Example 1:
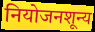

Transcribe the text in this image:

नियोजनशून्य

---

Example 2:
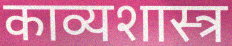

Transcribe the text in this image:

काव्यशास्त्र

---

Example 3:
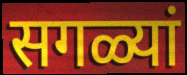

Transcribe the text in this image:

सगळ्यां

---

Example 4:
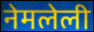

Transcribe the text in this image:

नेमलेली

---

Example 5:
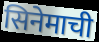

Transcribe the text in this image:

सिनेमाची